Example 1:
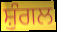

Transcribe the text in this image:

ਸ਼ੁੰਗਲ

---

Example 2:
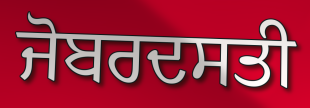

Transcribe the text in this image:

ਜੋਬਰਦਸਤੀ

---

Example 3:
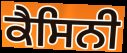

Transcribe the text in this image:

ਕੈਸਿਨੀ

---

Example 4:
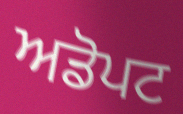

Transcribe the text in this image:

ਅਡੋਪਟ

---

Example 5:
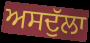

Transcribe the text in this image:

ਅਸਦੁੱਲਾ